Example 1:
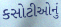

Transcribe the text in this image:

કસોટીઓનું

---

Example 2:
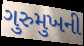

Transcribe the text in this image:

ગુરુમુખની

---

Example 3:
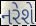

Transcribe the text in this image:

નરેશે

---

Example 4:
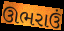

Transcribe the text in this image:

ઊભરાઉં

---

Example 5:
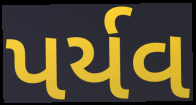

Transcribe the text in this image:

પર્યવ